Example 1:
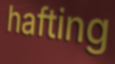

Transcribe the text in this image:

hafting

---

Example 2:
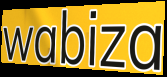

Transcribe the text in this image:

wabiza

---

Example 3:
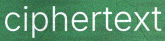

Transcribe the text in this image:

ciphertext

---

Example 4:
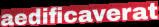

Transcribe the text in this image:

aedificaverat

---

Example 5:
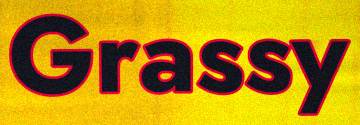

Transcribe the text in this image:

Grassy